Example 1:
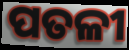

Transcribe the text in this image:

ପତଳୀ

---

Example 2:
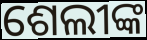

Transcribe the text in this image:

ଶେଲୀଙ୍କ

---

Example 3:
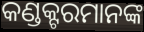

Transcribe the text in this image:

କଣ୍ଡକ୍ଟରମାନଙ୍କ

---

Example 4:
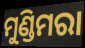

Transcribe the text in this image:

ମୁଣ୍ଡିମରା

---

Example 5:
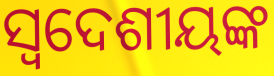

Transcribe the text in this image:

ସ୍ଵଦେଶୀୟଙ୍କ